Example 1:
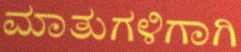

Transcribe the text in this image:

ಮಾತುಗಳಿಗಾಗಿ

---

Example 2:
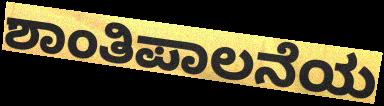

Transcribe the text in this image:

ಶಾಂತಿಪಾಲನೆಯ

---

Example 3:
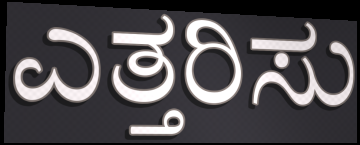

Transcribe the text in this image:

ಎತ್ತರಿಸು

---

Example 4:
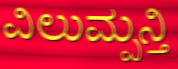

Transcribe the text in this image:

ವಿಲುಮ್ಪನ್ತಿ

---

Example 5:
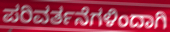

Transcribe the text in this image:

ಪರಿವರ್ತನೆಗಳಿಂದಾಗಿ